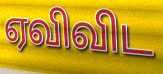
ஏவிவிட